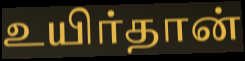
உயிர்தான்